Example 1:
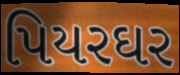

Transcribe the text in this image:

પિયરઘર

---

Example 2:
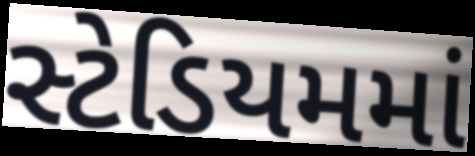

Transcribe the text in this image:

સ્ટેડિયમમાં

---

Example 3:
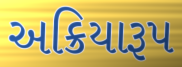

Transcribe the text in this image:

અક્રિયારૂપ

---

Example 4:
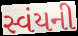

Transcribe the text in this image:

સ્વંયની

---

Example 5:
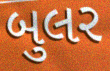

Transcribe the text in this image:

બુલર